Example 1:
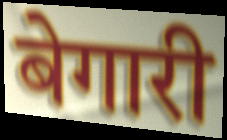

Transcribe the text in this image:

बेगारी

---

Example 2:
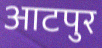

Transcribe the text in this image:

आटपुर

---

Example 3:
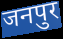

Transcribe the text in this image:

जनपुर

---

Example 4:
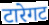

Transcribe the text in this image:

टारेगट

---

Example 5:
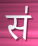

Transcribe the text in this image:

स॑